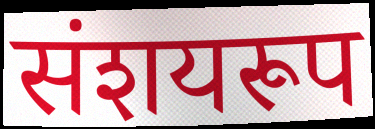
संशयरूप